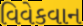
વિવેકવાન